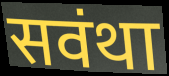
सवंथा